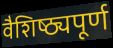
वैशिष्ठ्यपूर्ण